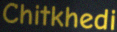
Chitkhedi